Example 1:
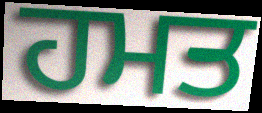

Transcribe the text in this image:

ਹਮਤ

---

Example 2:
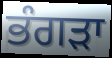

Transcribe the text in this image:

ਭੰਗੜਾ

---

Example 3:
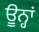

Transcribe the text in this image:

ਊਨ੍ਹਾਂ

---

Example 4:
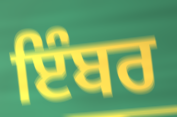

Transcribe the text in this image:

ਇੰਬਰ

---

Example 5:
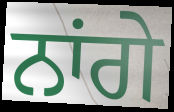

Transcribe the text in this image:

ਨਾਂਗੇ